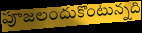
పూజలందుకొంటున్నది